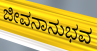
ಜೀವನಾನುಭವ